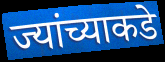
ज्यांच्याकडे